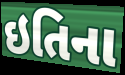
ઇતિના